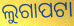
ଲୁଗାପଟା